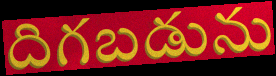
దిగబడును